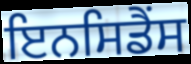
ਇਨਸਿਡੈਂਸ